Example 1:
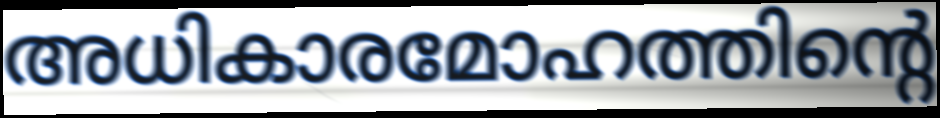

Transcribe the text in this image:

അധികാരമോഹത്തിന്റെ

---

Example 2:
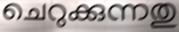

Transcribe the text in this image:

ചെറുക്കുന്നതു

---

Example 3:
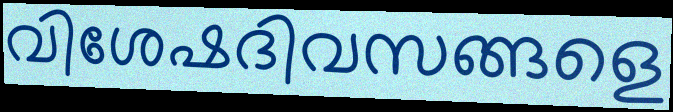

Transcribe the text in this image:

വിശേഷദിവസങ്ങളെ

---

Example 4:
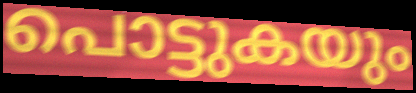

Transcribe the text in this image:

പൊട്ടുകയും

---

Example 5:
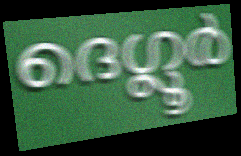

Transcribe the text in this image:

ദെഗ്ലൂർ